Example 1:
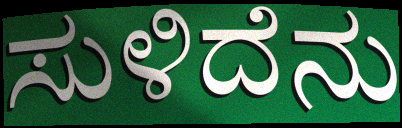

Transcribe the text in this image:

ಸುಳಿದೆನು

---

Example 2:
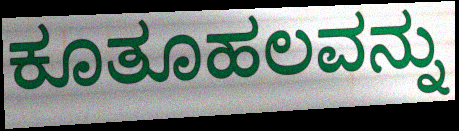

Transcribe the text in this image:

ಕೂತೂಹಲವನ್ನು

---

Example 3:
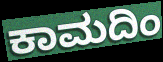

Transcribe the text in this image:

ಕಾಮದಿಂ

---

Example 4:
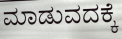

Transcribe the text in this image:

ಮಾಡುವದಕ್ಕೆ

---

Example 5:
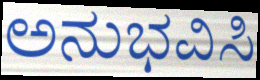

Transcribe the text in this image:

ಅನುಭವಿಸಿ